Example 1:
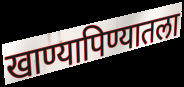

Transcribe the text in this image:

खाण्यापिण्यातला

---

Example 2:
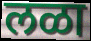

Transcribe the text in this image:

लळा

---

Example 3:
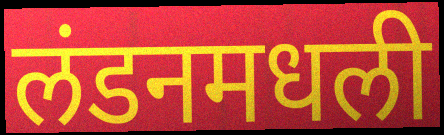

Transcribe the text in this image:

लंडनमधली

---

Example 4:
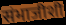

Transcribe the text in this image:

संभाजीशी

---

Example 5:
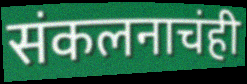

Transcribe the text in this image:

संकलनाचंही